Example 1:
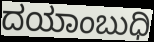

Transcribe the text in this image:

ದಯಾಂಬುಧಿ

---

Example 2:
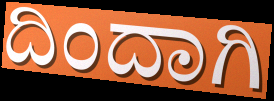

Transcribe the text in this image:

ದಿಂದಾಗಿ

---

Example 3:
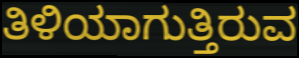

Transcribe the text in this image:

ತಿಳಿಯಾಗುತ್ತಿರುವ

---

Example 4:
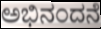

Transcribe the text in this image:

ಅಭಿನಂದನೆ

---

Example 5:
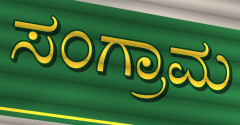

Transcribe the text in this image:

ಸಂಗ್ರಾಮ